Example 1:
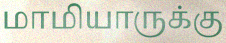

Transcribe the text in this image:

மாமியாருக்கு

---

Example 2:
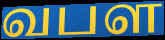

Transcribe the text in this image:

வபள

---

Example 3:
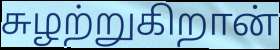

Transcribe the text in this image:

சுழற்றுகிறான்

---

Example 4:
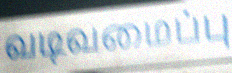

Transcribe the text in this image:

வடிவமைப்பு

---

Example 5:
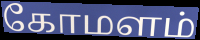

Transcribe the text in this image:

கோமளம்